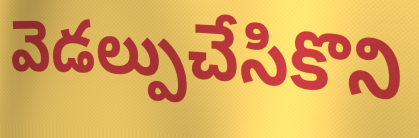
వెడల్పుచేసికొని